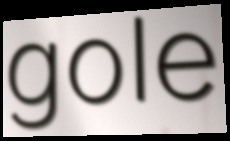
gole